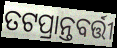
ତଟପ୍ରାନ୍ତବର୍ତ୍ତୀ